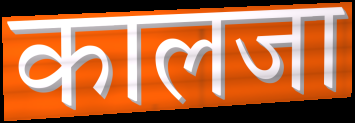
कालजा